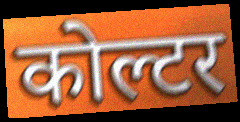
कोल्टर